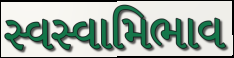
સ્વસ્વામિભાવ